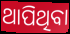
ଥାପିଥିବା